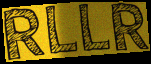
RLLR